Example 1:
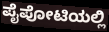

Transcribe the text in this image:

ಪೈಪೋಟಿಯಲ್ಲಿ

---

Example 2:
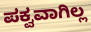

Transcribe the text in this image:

ಪಕ್ವವಾಗಿಲ್ಲ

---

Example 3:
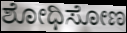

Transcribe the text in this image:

ಶೋಧಿಸೋಣ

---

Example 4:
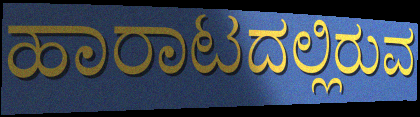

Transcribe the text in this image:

ಹಾರಾಟದಲ್ಲಿರುವ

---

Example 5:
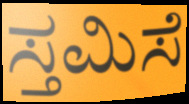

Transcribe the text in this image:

ಸ್ತಮಿಸೆ